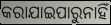
କରାଯାଇପାରୁନାହିଁ